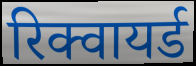
रिक्वायर्ड